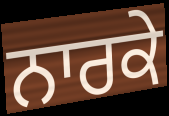
ਨਾਰਕੇ